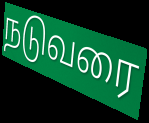
நடுவரை